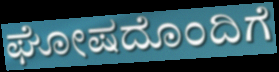
ಘೋಷದೊಂದಿಗೆ